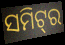
ସମିଟ୍‌ର